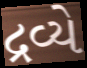
દ્રવ્યે